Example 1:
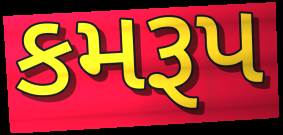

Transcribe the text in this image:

કમરૂપ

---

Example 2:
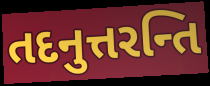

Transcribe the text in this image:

તદનુત્તરન્તિ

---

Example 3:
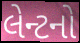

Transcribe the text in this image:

લેન્ટનો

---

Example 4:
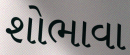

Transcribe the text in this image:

શોભાવા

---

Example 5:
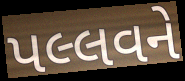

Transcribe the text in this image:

પલ્લવને